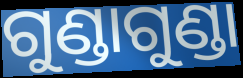
ଗୁଣ୍ଡାଗୁଣ୍ଡା